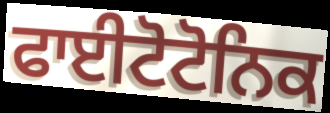
ਫਾਈਟੋਟੋਨਿਕ